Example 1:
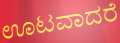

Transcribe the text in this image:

ಊಟವಾದರೆ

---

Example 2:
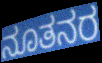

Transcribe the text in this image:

ನೂತನರ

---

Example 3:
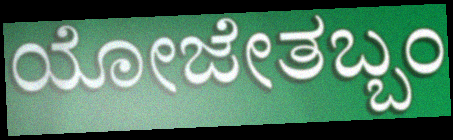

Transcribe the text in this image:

ಯೋಜೇತಬ್ಬಂ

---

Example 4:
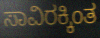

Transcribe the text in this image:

ಸಾವಿರಕ್ಕಿಂತ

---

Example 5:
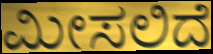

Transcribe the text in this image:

ಮೀಸಲಿದೆ